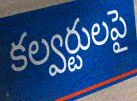
కల్వర్టులపై